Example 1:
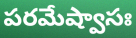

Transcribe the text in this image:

పరమేష్వాసః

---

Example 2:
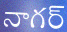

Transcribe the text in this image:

నాగర్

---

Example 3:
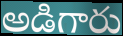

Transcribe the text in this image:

అడిగారు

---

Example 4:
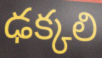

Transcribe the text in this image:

ఢక్కలి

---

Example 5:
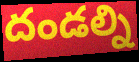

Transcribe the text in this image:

దండల్ని